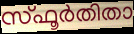
സ്ഫൂർതിതാ